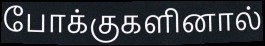
போக்குகளினால்